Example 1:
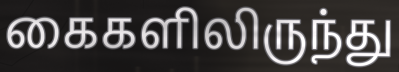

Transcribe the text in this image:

கைகளிலிருந்து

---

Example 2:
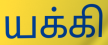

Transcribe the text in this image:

யக்கி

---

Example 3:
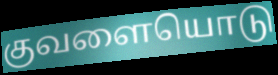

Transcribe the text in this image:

குவளையொடு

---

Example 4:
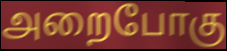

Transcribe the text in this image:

அறைபோகு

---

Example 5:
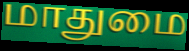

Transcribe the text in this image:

மாதுமை